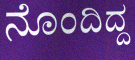
ನೊಂದಿದ್ದ